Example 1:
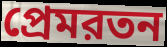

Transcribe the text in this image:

প্রেমরতন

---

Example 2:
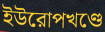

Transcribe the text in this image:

ইউরোপখণ্ডে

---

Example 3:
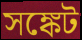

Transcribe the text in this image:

সঙ্কেট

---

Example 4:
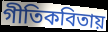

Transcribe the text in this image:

গীতিকবিতায়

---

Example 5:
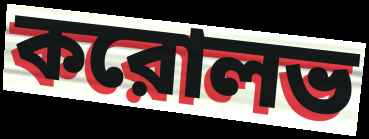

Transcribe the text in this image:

করোলভ